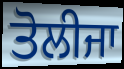
ਤੋਲੀਜਾ